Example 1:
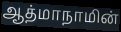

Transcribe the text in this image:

ஆத்மாநாமின்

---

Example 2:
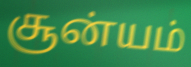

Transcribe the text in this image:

சூன்யம்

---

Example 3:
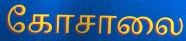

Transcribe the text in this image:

கோசாலை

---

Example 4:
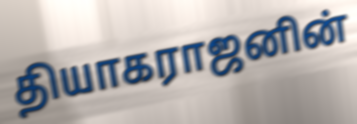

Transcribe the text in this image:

தியாகராஜனின்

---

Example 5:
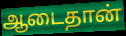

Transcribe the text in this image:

ஆடைதான்